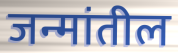
जन्मांतील